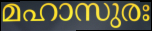
മഹാസുരഃ